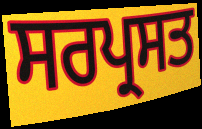
ਸਰਪ੍ਰਸਤ